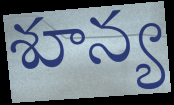
శూన్య